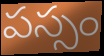
పస్సం